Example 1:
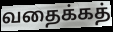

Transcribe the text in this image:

வதைக்கத்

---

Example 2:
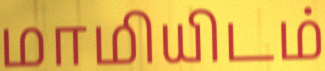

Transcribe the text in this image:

மாமியிடம்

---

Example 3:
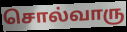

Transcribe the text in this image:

சொல்வாரு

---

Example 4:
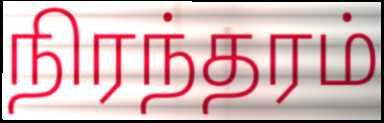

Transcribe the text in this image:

நிரந்தரம்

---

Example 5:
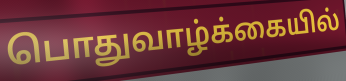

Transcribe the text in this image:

பொதுவாழ்க்கையில்